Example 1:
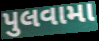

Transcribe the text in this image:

પુલવામા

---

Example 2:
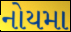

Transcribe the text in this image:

નોયમા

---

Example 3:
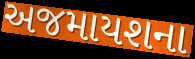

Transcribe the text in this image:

અજમાયશના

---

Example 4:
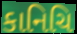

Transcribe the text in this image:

કાનિચિ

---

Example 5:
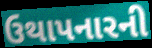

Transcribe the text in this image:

ઉથાપનારની